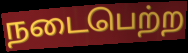
நடைபெற்ற